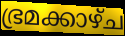
ഭ്രമക്കാഴ്ച